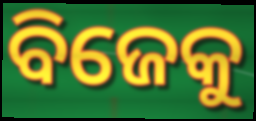
ବିଜେକୁ